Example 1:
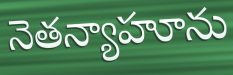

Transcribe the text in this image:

నెతన్యాహూను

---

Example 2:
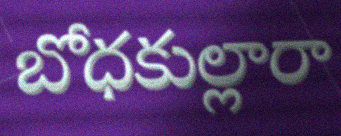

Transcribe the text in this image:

బోధకుల్లారా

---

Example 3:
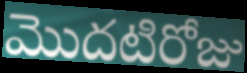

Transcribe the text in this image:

మొదటిరోజు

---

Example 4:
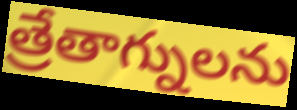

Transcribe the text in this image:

త్రేతాగ్నులను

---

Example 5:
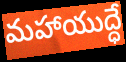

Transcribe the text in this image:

మహాయుద్ధే